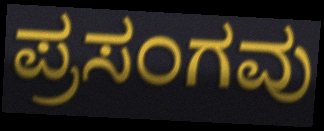
ಪ್ರಸಂಗವು